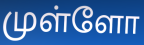
முள்ளோ